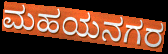
ಮಹಯನಗರ